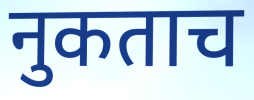
नुकताच